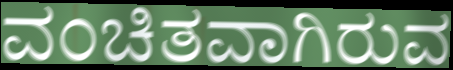
ವಂಚಿತವಾಗಿರುವ